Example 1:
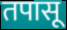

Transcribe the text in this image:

तपासू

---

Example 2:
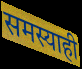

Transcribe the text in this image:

समस्याही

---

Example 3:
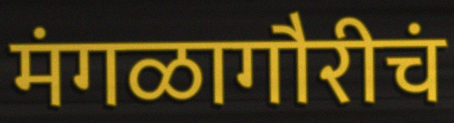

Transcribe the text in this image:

मंगळागौरीचं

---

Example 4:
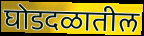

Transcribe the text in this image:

घोडदळातील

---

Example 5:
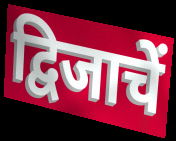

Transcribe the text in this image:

द्विजाचें